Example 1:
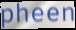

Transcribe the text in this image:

pheen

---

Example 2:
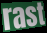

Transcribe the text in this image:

rast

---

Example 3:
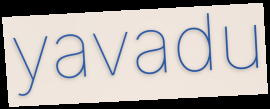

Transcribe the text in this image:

yavadu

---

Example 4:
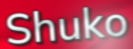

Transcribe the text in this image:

Shuko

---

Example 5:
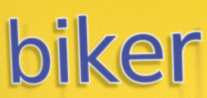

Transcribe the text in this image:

biker